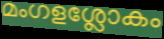
മംഗളശ്ലോകം